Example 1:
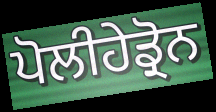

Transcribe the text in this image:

ਪੋਲੀਹੇਡ੍ਰੋਨ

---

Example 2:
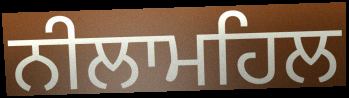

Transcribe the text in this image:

ਨੀਲਾਮਹਿਲ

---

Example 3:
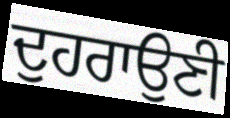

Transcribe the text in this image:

ਦੁਹਰਾਉਣੀ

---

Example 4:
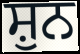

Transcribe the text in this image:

ਸ਼ੁਨ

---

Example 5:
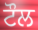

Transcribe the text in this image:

ਟੌਲ